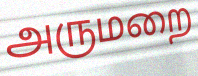
அருமறை